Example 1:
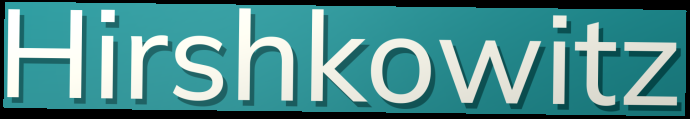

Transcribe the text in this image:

Hirshkowitz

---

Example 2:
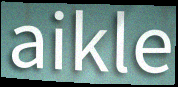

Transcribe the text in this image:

aikle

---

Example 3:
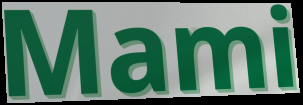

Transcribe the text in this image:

Mami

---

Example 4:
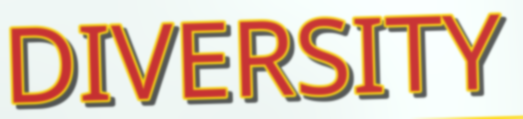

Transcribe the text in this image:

DIVERSITY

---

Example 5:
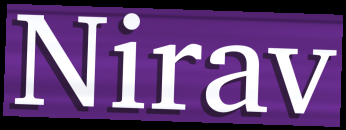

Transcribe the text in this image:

Nirav